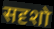
सदृशो